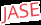
JASE